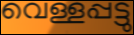
വെള്ളപ്പട്ടു